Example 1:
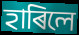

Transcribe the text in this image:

হাৰিলে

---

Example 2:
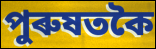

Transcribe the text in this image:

পুৰুষতকৈ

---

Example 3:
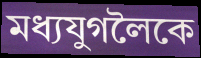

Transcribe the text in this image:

মধ্যযুগলৈকে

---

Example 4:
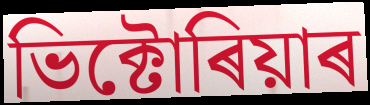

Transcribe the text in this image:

ভিক্টোৰিয়াৰ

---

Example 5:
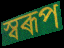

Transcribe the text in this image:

স্বৰূপ